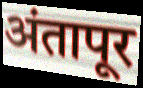
अंतापूर